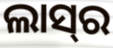
ଲାସ୍‌ର